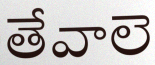
తేవాలె